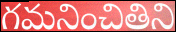
గమనించితిని